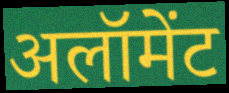
अलॉमेंट